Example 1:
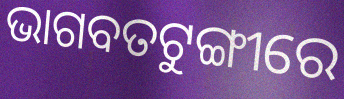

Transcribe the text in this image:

ଭାଗବତଟୁଙ୍ଗୀରେ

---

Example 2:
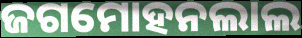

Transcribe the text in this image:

ଜଗମୋହନଲାଲ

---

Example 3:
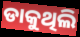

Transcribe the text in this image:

ଡାକୁଥିଲି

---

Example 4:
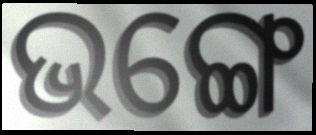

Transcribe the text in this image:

ଭଙ୍ଗେ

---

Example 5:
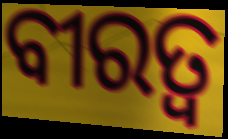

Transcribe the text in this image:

ବୀରତ୍ୱ